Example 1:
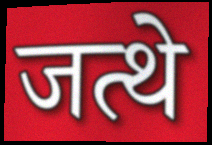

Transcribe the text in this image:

जत्थे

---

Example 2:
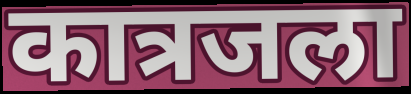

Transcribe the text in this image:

कात्रजला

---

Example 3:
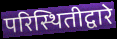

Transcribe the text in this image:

परिस्थितीद्वारे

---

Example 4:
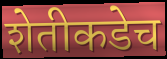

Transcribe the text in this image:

शेतीकडेच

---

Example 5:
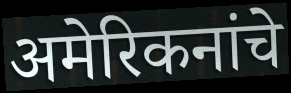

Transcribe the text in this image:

अमेरिकनांचे